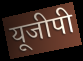
यूजीपी